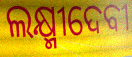
ଲକ୍ଷ୍ମୀଦେବୀ